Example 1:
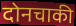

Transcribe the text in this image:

दोनचाकी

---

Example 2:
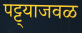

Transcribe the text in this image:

पट्ट्याजवळ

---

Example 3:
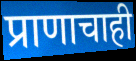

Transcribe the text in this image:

प्राणाचाही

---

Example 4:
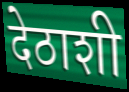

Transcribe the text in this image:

देठाशी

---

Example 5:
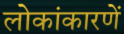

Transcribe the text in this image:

लोकांकारणें